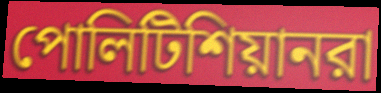
পোলিটিশিয়ানরা